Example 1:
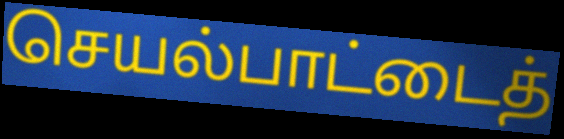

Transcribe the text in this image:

செயல்பாட்டைத்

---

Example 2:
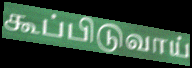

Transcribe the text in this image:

கூப்பிடுவாய்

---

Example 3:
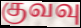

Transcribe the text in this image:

குவவு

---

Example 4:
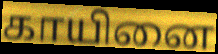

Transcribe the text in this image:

காயினை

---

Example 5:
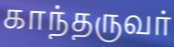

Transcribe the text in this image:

காந்தருவர்